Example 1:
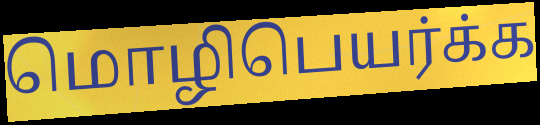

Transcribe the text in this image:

மொழிபெயர்க்க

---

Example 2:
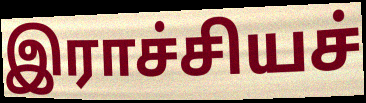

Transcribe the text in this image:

இராச்சியச்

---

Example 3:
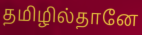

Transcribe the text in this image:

தமிழில்தானே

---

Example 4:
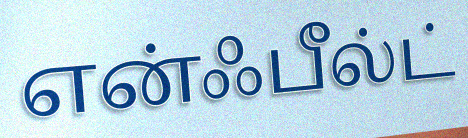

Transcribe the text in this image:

என்ஃபீல்ட்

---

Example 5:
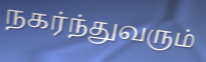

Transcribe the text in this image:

நகர்ந்துவரும்